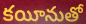
కయీనుతో